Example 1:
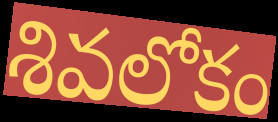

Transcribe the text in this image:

శివలోకం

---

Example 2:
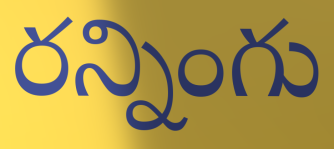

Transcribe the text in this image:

రన్నింగు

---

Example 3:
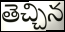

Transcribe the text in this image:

తెచ్చిన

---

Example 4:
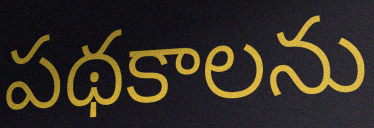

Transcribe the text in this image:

పథకాలను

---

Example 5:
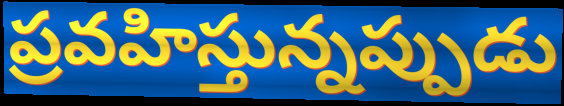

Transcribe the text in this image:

ప్రవహిస్తున్నప్పుడు